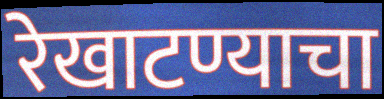
रेखाटण्याचा